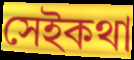
সেইকথা